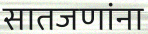
सातजणांना